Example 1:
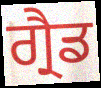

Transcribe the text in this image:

ਗ੍ਰੈਡ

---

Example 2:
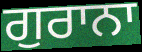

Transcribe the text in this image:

ਗੁਰਾਨਾ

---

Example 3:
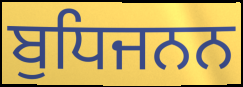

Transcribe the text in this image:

ਬੁਧਿਜਨਨ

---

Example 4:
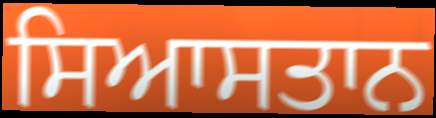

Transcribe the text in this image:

ਸਿਆਸਤਾਨ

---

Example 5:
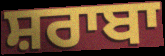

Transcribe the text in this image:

ਸ਼ਰਾਬਾ